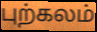
புற்கலம்